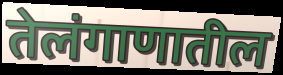
तेलंगाणातील